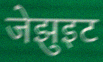
जेझुइट